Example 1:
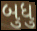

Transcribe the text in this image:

બુધુ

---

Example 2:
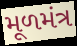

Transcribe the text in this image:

મૂળમંત્ર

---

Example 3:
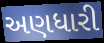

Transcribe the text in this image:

અણધારી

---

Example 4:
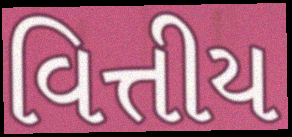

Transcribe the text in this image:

વિત્તીય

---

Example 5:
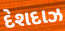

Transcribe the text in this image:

દેશદાઝ